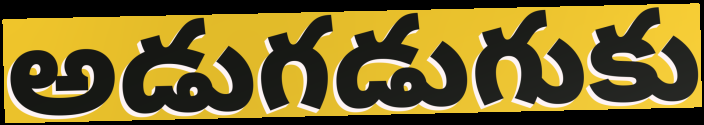
అడుగడుగుకు